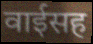
वाईसह